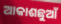
ଆକାଶଛୁଆଁ